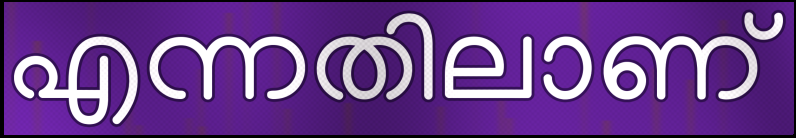
എന്നതിലാണ്